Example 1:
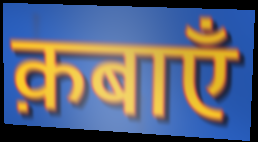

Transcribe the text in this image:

क़बाएँ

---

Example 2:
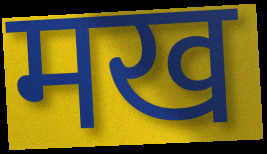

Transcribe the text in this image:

मख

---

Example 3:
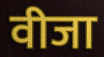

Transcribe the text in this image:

वीजा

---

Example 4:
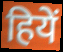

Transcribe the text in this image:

हियें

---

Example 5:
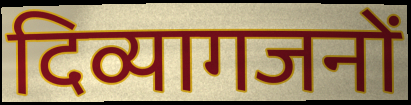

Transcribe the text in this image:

दिव्यागजनों